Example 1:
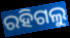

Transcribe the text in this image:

ରହିଗଲୁ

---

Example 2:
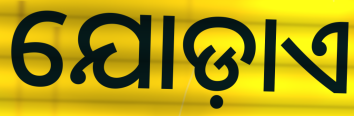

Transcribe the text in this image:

ଯୋଡ଼ାଏ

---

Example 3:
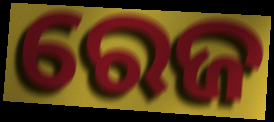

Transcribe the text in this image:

ରେଜ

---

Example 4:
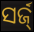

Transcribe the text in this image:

ସର୍ଜ୍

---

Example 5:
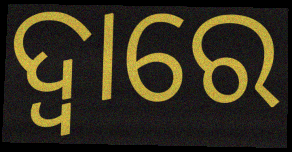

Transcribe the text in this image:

ଦ୍ବାରେ